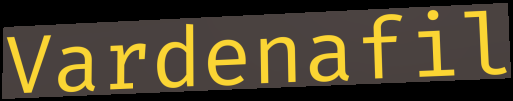
Vardenafil